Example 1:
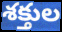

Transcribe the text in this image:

శక్తుల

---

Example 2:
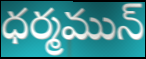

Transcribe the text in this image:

ధర్మమున్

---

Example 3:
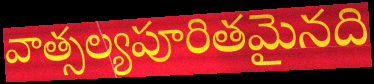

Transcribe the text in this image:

వాత్సల్యపూరితమైనది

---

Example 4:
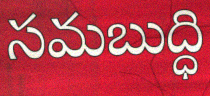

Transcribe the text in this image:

సమబుద్ధి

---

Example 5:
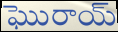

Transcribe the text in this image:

ఘొరాయ్